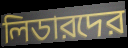
লিডারদের